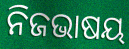
ନିଜଭାଷୟ